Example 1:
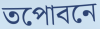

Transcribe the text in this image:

তপোবনে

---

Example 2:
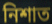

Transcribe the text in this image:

নিশাত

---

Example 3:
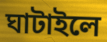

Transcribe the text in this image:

ঘাটাইলে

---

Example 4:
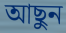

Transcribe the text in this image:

আছুন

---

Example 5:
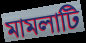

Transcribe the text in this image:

মামলাটি